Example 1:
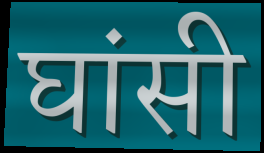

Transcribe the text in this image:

घांसी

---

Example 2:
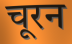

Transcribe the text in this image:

चूरन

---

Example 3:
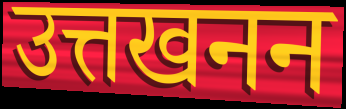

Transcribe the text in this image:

उत्तखनन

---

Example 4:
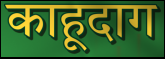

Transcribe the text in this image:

काहूदाग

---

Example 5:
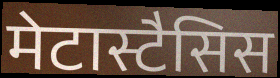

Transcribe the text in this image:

मेटास्टैसिस